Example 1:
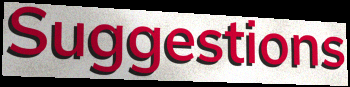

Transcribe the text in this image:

Suggestions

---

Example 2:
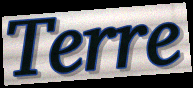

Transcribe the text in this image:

Terre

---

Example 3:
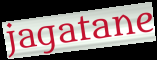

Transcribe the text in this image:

jagatane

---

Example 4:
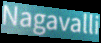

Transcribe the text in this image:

Nagavalli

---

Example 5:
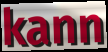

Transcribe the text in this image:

kann